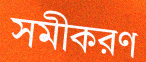
সমীকরণ